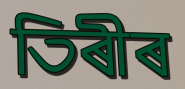
তিৰীৰ